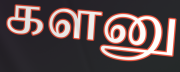
களனு